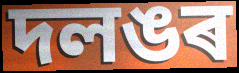
দলঙৰ